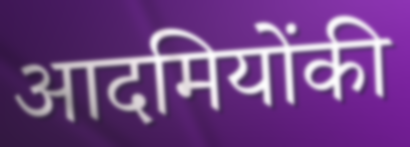
आदमियोंकी